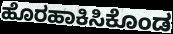
ಹೊರಹಾಕಿಸಿಕೊಂಡ